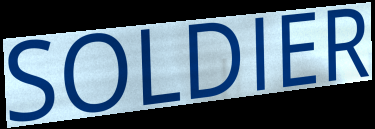
SOLDIER